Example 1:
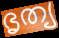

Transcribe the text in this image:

ഭൃത്യ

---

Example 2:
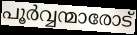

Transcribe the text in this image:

പൂർവ്വന്മാരോട്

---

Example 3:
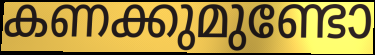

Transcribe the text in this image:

കണക്കുമുണ്ടോ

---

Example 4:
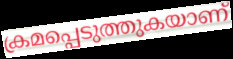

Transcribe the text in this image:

ക്രമപ്പെടുത്തുകയാണ്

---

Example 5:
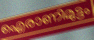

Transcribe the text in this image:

ഐരാണിമുട്ടം